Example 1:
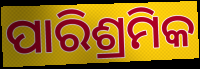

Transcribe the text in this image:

ପାରିଶ୍ରମିକ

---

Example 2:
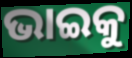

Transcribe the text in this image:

ଭାଇକୁ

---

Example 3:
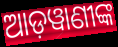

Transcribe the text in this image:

ଆଡ଼ୱାଣୀଙ୍କ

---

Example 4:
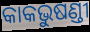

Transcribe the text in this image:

କାକଭୁଷଣ୍ଡୀ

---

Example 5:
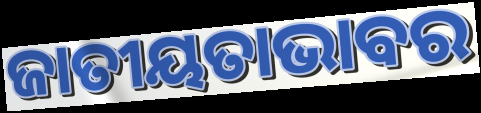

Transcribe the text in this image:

ଜାତୀୟତାଭାବର